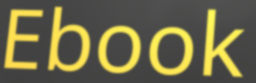
Ebook